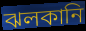
ঝলকানি